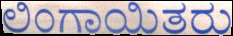
ಲಿಂಗಾಯಿತರು